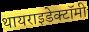
थायराइडेक्टॉमी